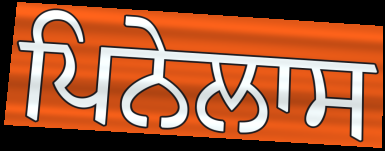
ਪਿਨੇਲਾਸ